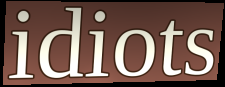
idiots